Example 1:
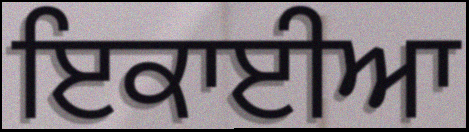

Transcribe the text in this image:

ਇਕਾਈਆ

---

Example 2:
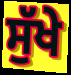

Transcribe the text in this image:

ਸੁੱਖੇ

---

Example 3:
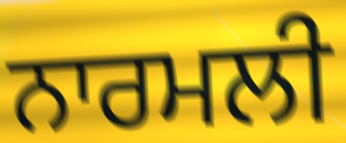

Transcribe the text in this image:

ਨਾਰਮਲੀ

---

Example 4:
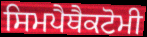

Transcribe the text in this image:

ਸਿਮਪੈਥੈਕਟੋਮੀ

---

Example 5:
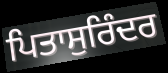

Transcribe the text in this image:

ਪਿਤਾਸੁਰਿੰਦਰ